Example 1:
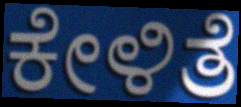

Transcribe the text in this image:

ಕೇಳಿತೆ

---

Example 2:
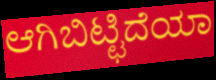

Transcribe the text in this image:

ಆಗಿಬಿಟ್ಟಿದೆಯಾ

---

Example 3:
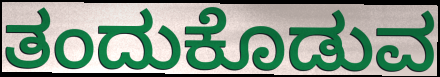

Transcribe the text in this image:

ತಂದುಕೊಡುವ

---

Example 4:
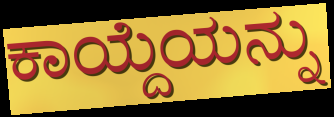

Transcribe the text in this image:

ಕಾಯ್ದೆಯನ್ನು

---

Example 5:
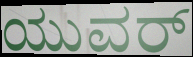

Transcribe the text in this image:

ಯುವರ್